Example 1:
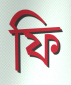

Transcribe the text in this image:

ফি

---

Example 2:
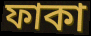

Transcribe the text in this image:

ফাকা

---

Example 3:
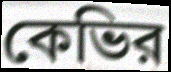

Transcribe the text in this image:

কেভির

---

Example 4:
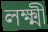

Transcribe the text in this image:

লক্ষ্মী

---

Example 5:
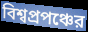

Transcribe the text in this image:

বিশ্বপ্রপঞ্চের